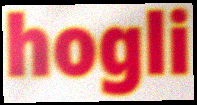
hogli